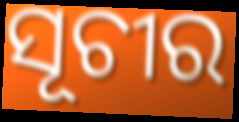
ସୂଚୀର